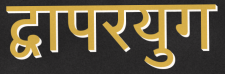
द्वापरयुग